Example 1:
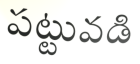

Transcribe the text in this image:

పట్టువడి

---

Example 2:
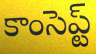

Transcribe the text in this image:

కాంసెప్ట్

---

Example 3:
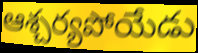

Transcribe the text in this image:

ఆశ్చర్యపోయేడు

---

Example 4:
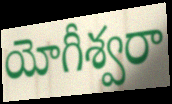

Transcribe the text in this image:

యోగీశ్వరా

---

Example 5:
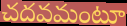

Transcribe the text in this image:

చదవమంటూ